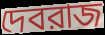
দেবরাজ